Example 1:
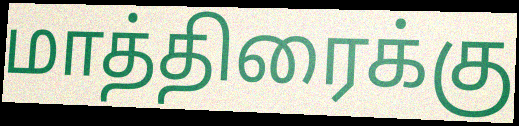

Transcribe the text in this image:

மாத்திரைக்கு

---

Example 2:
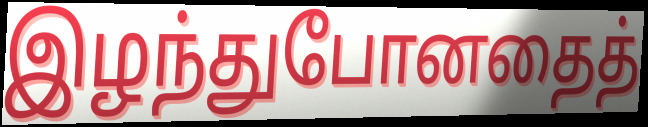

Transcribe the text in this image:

இழந்துபோனதைத்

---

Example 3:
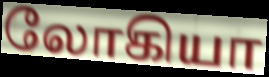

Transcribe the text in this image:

லோகியா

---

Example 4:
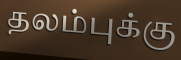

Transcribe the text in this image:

தலம்புக்கு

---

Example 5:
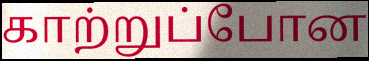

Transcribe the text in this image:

காற்றுப்போன